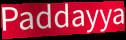
Paddayya